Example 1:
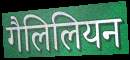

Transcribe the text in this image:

गैलिलियन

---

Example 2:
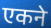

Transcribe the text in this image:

एकने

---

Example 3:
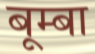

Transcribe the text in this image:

बूम्बा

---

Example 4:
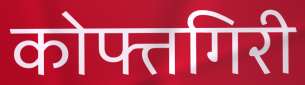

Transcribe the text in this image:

कोफ्तगिरी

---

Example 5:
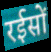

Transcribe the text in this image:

रईसों